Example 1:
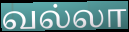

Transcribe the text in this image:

வல்லா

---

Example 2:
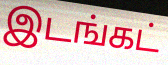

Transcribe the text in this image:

இடங்கட்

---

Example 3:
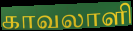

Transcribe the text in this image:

காவலாளி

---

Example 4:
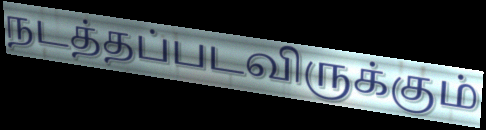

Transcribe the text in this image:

நடத்தப்படவிருக்கும்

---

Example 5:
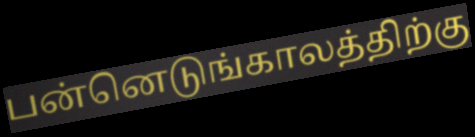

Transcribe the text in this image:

பன்னெடுங்காலத்திற்கு